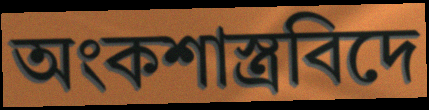
অংকশাস্ত্ৰবিদে